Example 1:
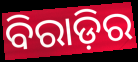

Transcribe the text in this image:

ବିରାଡ଼ିର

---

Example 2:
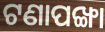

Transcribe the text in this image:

ଟଣାପଙ୍ଖା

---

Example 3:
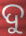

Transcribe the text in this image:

ଦୁ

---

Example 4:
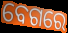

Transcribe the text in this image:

ବେଗରେ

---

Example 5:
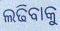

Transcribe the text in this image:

ଲଢିବାକୁ